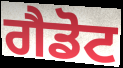
ਗੈਡੋਟ